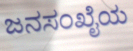
ಜನಸಂಖೈಯ